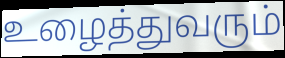
உழைத்துவரும்